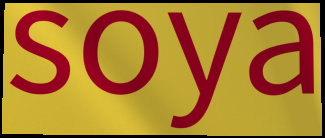
soya